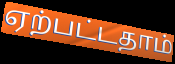
ஏற்பட்டதாம்